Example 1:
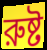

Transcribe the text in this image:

রুষ্ট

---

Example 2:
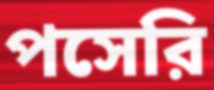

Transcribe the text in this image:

পসেরি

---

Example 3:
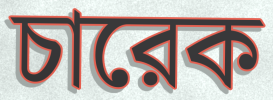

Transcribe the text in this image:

চারেক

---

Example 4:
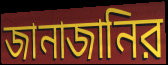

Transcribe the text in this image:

জানাজানির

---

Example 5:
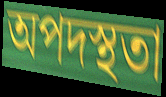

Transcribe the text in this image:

অপদস্থতা